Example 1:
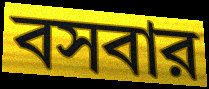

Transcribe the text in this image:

বসবার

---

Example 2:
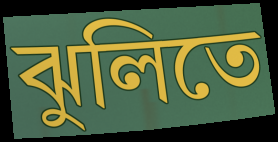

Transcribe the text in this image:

ঝুলিতে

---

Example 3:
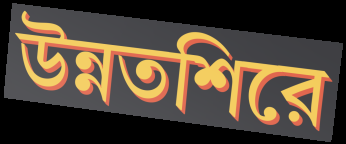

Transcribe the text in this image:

উন্নতশিরে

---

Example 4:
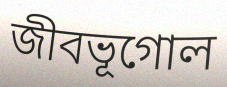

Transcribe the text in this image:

জীবভূগোল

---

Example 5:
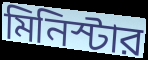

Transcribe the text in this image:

মিনিস্টার